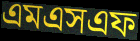
এমএসএফ